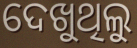
ଦେଖୁଥିଲୁ